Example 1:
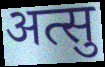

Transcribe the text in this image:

अत्सु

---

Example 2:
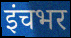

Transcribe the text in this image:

इंचभर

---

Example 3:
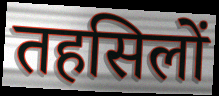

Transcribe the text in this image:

तहसिलों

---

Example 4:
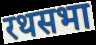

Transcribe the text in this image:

रथसभा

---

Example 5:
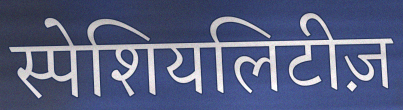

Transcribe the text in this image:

स्पेशियलिटीज़